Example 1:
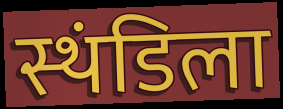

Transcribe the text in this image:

स्थंडिला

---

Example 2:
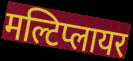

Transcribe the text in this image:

मल्टिप्लायर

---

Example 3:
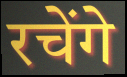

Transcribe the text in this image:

रचेंगे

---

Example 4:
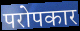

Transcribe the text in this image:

परोपकार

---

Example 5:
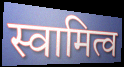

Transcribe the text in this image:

स्वामित्व